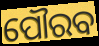
ପୌରବ